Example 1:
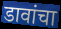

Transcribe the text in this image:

डावांचा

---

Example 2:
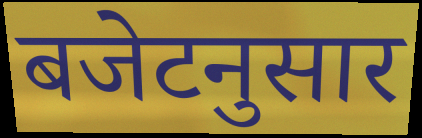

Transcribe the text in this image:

बजेटनुसार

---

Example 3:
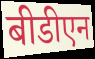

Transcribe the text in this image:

बीडीएन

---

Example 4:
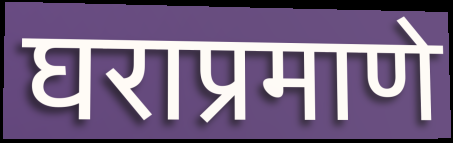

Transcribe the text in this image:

घराप्रमाणे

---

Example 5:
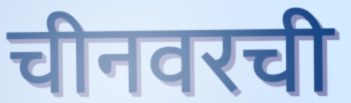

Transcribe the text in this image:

चीनवरची